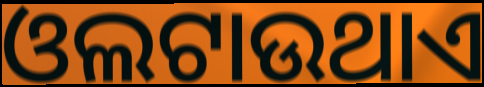
ଓଲଟାଉଥାଏ